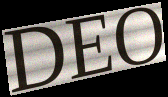
DEO